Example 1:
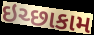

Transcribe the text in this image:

ઇચ્છાકામ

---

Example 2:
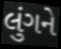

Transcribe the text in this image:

લુંગને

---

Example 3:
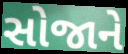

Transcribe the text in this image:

સોજાને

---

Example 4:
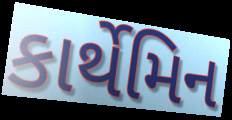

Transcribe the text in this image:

કાર્થેમિન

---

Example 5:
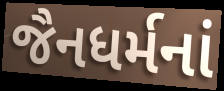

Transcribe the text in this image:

જૈનધર્મનાં